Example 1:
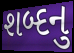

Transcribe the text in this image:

શબ્દનુ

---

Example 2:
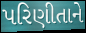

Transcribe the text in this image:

પરિણીતાને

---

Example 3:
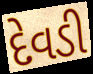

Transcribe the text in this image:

દેવડી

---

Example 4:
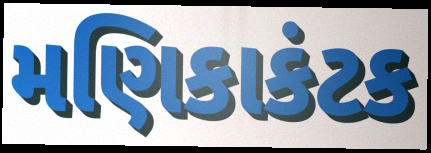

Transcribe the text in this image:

મણિકાકંટક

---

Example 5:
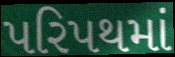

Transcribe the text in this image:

પરિપથમાં